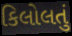
કિલોલતું